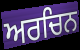
ਅਰਚਿਨ